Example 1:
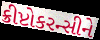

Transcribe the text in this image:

ક્રીપ્ટોકરન્સીને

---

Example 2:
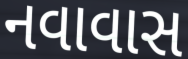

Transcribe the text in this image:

નવાવાસ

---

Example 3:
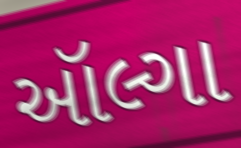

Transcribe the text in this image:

ઑલ્ગા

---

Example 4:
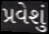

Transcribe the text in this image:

પ્રવેશું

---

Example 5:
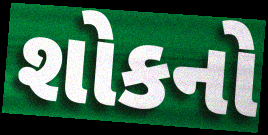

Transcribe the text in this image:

શોકનો